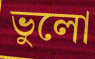
ভুলো